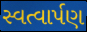
સ્વત્વાર્પણ